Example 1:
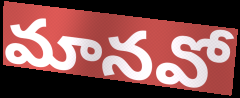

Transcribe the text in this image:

మానవో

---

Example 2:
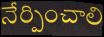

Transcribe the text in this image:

నేర్పించాలి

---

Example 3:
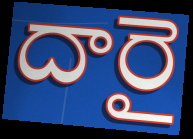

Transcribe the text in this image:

దారై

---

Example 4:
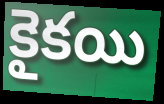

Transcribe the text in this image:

కైకయి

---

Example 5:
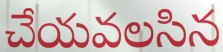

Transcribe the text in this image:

చేయవలసిన